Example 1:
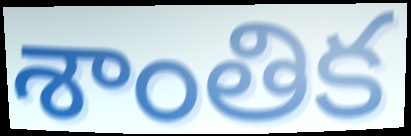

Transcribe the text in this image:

శాంతిక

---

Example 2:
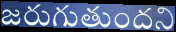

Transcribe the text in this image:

జరుగుతుందని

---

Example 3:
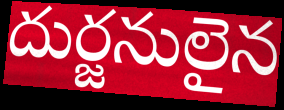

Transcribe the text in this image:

దుర్జనులైన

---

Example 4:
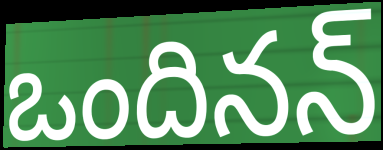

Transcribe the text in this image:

ఒందినన్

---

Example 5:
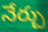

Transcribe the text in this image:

నేర్చు